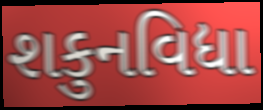
શકુનવિદ્યા